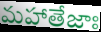
మహాతేజాః